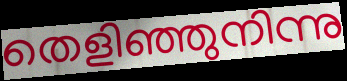
തെളിഞ്ഞുനിന്നു